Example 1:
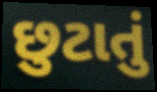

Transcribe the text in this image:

છુટાતું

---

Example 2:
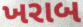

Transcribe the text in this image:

ખરાબ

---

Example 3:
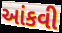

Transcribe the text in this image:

આંકવી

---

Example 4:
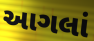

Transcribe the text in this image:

આગલાં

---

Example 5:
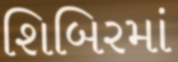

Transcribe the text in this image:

શિબિરમાં